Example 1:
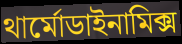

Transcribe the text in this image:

থার্মোডাইনামিক্স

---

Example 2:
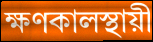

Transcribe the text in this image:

ক্ষণকালস্থায়ী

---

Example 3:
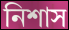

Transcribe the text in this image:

নিশাস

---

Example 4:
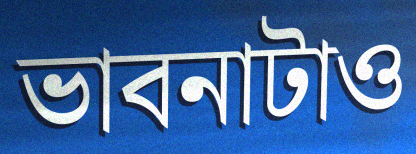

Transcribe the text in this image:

ভাবনাটাও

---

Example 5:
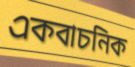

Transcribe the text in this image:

একবাচনিক